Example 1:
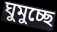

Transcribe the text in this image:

ঘুমুচ্ছে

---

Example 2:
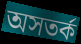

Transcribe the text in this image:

অসতর্ক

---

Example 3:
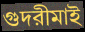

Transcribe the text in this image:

গুদরীমাই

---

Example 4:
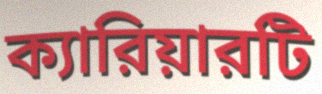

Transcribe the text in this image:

ক্যারিয়ারটি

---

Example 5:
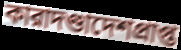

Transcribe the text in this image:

কারাদণ্ডাদেশপ্রাপ্ত